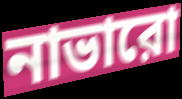
নাভারো